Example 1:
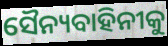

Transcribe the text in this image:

ସୈନ୍ୟବାହିନୀକୁ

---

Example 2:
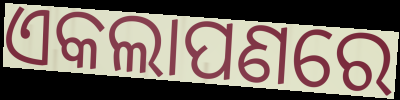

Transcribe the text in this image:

ଏକଲାପଣରେ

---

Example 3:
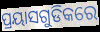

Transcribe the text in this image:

ପ୍ରୟାସଗୁଡିକରେ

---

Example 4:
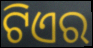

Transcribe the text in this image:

ଟିଏର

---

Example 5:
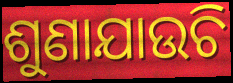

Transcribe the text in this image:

ଶୁଣାଯାଉଚି